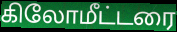
கிலோமீட்டரை